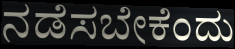
ನಡೆಸಬೇಕೆಂದು